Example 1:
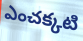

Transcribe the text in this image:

ఎంచక్కటి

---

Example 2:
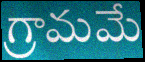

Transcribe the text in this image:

గ్రామమే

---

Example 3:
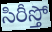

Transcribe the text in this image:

సిరీస్తో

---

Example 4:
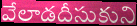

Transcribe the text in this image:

వేలాడదీసుకుని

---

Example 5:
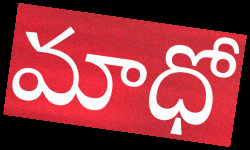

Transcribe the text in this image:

మాధో